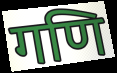
गणि